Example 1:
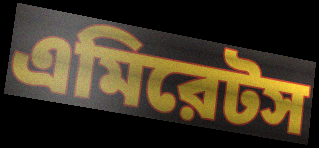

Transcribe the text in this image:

এমিরেটস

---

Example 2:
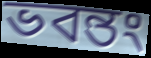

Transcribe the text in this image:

ভবন্তং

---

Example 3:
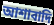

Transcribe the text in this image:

আশাবাদি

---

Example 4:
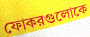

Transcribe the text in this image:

ফোকরগুলোকে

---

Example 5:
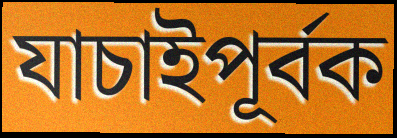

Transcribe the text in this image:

যাচাইপূর্বক